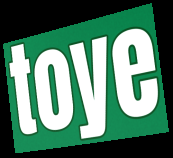
toye